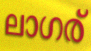
ലാഗര്